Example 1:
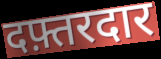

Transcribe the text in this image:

दफ़्तरदार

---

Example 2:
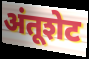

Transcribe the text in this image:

अंतूशेट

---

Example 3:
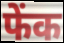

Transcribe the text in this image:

फेंक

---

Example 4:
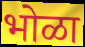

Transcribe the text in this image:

भोळा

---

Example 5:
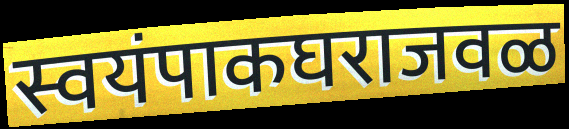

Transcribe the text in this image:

स्वयंपाकघराजवळ